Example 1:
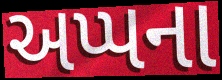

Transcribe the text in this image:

અપ્પના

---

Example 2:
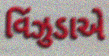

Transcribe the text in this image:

વિંઝુડાએ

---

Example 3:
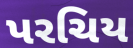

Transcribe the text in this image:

પરચિય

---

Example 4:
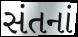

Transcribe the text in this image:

સંતનાં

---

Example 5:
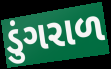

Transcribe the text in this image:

ડુંગરાળ